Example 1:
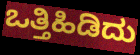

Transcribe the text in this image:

ಒತ್ತಿಹಿಡಿದು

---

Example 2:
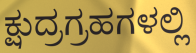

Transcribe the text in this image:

ಕ್ಷುದ್ರಗ್ರಹಗಳಲ್ಲಿ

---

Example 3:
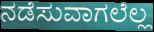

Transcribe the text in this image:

ನಡೆಸುವಾಗಲೆಲ್ಲ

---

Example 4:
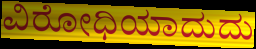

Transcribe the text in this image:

ವಿರೋಧಿಯಾದುದು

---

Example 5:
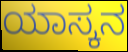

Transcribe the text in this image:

ಯಾಸ್ಕನ